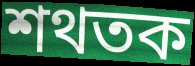
শথতক